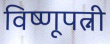
विष्णूपत्नी